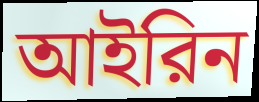
আইরিন